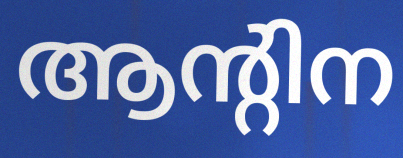
ആന്റിന